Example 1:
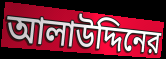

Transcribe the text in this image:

আলাউদ্দিনের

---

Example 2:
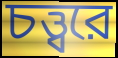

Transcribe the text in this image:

চত্ত্বরে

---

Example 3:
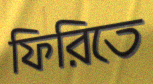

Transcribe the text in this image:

ফিরিতে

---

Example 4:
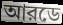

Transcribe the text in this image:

আরডে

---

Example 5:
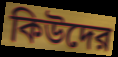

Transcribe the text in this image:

কিউদের